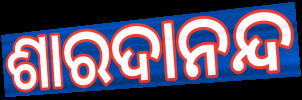
ଶାରଦାନନ୍ଦ